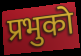
प्रभुको